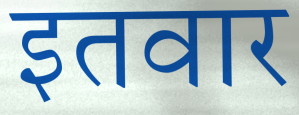
इतवार